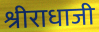
श्रीराधाजी